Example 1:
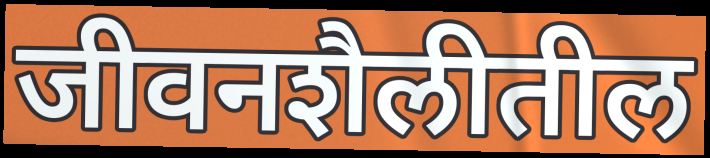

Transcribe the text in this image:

जीवनशैलीतील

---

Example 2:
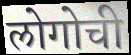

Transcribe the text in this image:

लोगोची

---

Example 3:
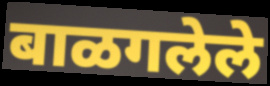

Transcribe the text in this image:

बाळगलेले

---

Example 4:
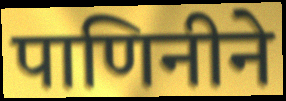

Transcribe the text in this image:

पाणिनीने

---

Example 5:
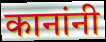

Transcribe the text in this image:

कानांनी